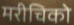
मरीचिको